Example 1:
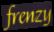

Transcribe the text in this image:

frenzy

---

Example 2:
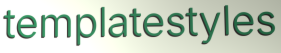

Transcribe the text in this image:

templatestyles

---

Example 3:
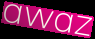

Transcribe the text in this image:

awaz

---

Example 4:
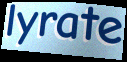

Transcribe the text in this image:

lyrate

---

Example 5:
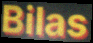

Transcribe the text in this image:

Bilas